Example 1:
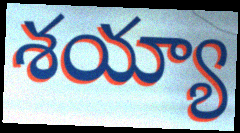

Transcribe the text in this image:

శయ్యా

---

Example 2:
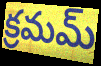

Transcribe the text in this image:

క్రమమ్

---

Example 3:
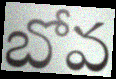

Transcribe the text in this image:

బోవ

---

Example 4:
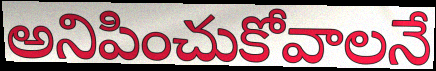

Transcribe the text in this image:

అనిపించుకోవాలనే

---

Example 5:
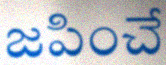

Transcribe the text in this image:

జపించే